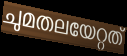
ചുമതലയേറ്റത്